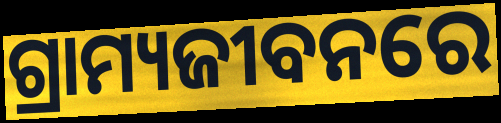
ଗ୍ରାମ୍ୟଜୀବନରେ